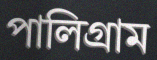
পালিগ্রাম